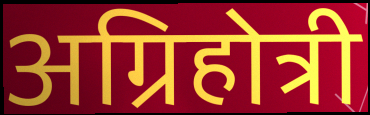
अग्रिहोत्री